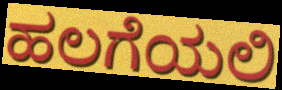
ಹಲಗೆಯಲಿ